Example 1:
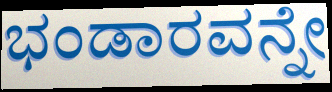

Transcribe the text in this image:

ಭಂಡಾರವನ್ನೇ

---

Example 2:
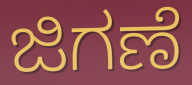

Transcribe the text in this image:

ಜಿಗಣೆ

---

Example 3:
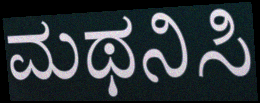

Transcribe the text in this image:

ಮಥನಿಸಿ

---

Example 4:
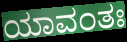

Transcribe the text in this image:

ಯಾವಂತಃ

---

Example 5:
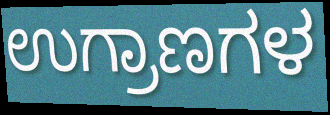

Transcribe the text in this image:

ಉಗ್ರಾಣಗಳ